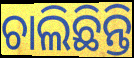
ଚାଲିଛିନ୍ତି